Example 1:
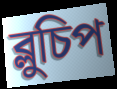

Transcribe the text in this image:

ব্লুচিপ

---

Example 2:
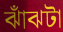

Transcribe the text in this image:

ঝাঁঝটা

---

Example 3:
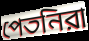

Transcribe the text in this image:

পেতনিরা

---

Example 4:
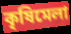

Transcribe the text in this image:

কৃষিমেলা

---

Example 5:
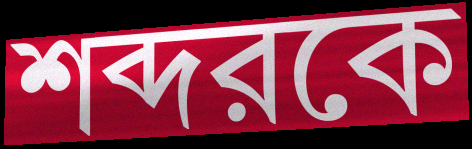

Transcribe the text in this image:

শব্দরকে